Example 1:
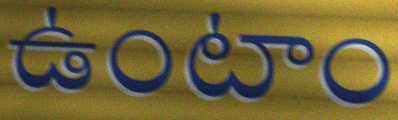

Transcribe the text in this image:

ఉంటాం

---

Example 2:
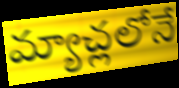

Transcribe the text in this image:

మ్యాచ్లలోనే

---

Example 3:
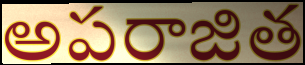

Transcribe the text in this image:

అపరాజిత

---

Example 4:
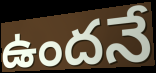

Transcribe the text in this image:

ఉందనే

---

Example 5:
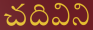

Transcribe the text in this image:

చదివిని